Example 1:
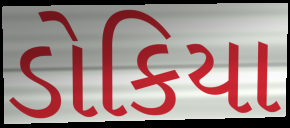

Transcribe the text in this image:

ડોકિયા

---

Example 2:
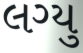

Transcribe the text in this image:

લગ્યુ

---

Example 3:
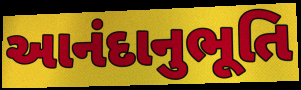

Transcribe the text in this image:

આનંદાનુભૂતિ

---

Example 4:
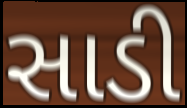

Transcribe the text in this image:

સાડી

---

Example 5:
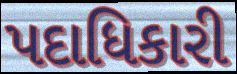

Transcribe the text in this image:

પદાધિકારી